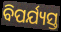
ବିପର୍ଯ୍ୟସ୍ତ